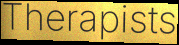
Therapists